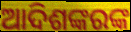
ଆଦିଶଙ୍କରଙ୍କ